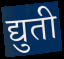
द्युती